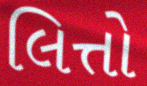
લિત્તો